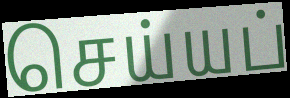
செய்யப்